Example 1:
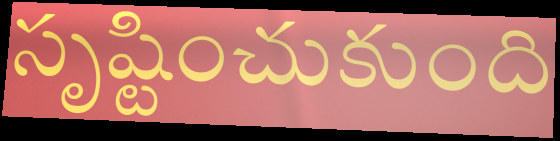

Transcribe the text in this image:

సృష్టించుకుంది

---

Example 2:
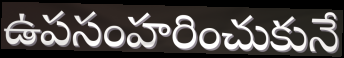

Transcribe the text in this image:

ఉపసంహరించుకునే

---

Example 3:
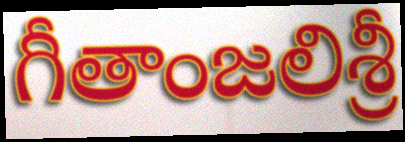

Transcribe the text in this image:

గీతాంజలిశ్రీ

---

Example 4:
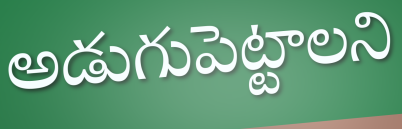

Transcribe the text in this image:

అడుగుపెట్టాలని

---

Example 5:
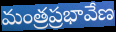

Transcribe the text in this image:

మంత్రప్రభావేణ